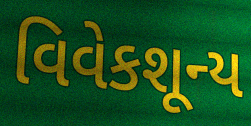
વિવેકશૂન્ય